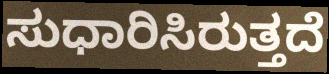
ಸುಧಾರಿಸಿರುತ್ತದೆ